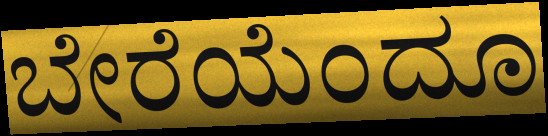
ಬೇರೆಯೆಂದೂ